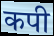
कपी